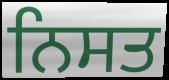
ਨਿਸਤ